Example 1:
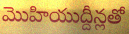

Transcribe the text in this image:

మొహియుద్దీన్లతో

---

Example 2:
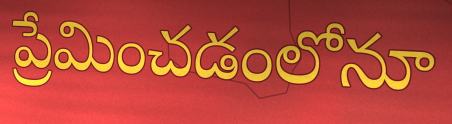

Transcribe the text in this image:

ప్రేమించడంలోనూ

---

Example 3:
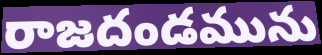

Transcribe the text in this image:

రాజదండమును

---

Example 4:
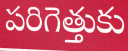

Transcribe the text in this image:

పరిగెత్తుకు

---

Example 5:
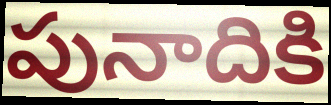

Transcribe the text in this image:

పునాదికి